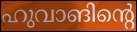
ഹുവാങിന്റെ